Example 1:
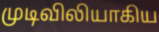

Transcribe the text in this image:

முடிவிலியாகிய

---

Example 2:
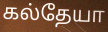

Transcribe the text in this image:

கல்தேயா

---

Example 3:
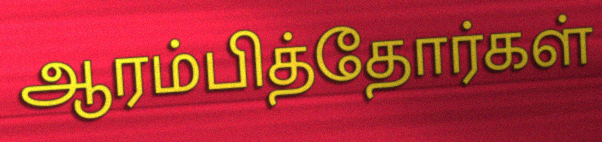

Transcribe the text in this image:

ஆரம்பித்தோர்கள்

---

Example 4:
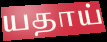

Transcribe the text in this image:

யதாய்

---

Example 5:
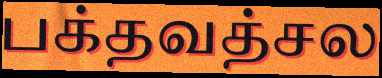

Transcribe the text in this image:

பக்தவத்சல